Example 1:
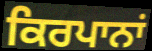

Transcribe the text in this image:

ਕਿਰਪਾਨਾਂ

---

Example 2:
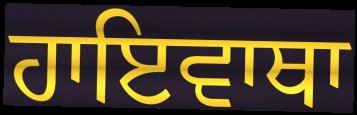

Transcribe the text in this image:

ਹਾਇਵਾਥਾ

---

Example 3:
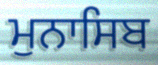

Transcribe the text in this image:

ਮੁਨਾਸਿਬ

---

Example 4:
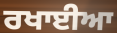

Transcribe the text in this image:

ਰਖਾਈਆ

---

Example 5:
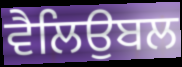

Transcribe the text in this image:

ਵੈਲਿਉਬਲ